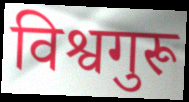
विश्वगुरू